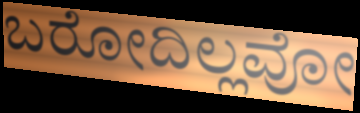
ಬರೋದಿಲ್ಲವೋ